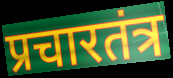
प्रचारतंत्र